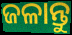
ଜଳାନ୍ତୁ